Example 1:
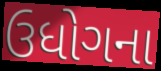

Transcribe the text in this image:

ઉધોગના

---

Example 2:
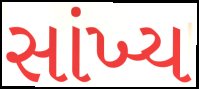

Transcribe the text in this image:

સાંખ્ય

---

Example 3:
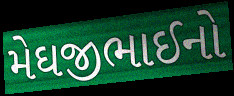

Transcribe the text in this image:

મેઘજીભાઈનો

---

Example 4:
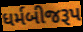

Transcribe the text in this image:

ધર્મબીજરૂપ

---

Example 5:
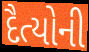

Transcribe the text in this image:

દૈત્યોની